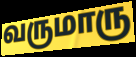
வருமாரு